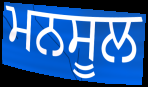
ਮਨਸੂਲ